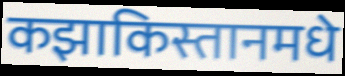
कझाकिस्तानमधे